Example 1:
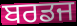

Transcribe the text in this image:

ਬਰਡਜ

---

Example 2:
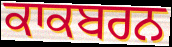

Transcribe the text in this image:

ਕਾਕਬਰਨ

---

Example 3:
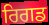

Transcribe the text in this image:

ਰਿਗਡ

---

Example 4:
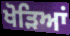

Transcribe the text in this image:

ਖੋੜਿਆਂ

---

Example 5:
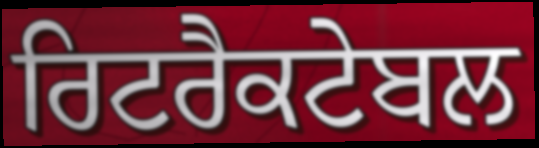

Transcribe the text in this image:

ਰਿਟਰੈਕਟੇਬਲ